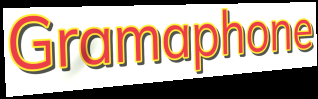
Gramaphone